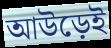
আউড়েই